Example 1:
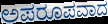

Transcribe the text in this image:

ಅಪರೂಪವಾದ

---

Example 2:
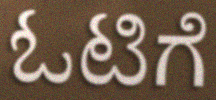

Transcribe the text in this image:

ಓಟಿಗೆ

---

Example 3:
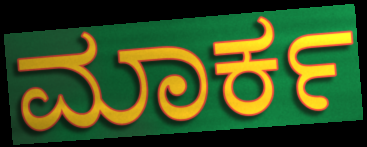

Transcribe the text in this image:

ಮಾರ್ಕ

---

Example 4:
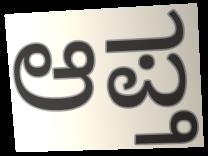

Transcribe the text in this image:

ಆಪ್ತ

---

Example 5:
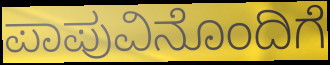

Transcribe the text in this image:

ಪಾಪುವಿನೊಂದಿಗೆ